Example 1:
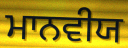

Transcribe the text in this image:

ਮਾਨਵੀਯ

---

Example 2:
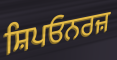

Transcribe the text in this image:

ਸ਼ਿਪਓਨਰਜ਼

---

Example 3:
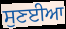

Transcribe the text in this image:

ਸੁਣਈਆ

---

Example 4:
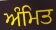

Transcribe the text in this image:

ਅੰਮਿਤ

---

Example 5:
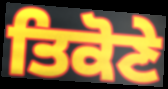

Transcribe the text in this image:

ਤਿਕੋਣੇ